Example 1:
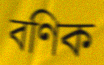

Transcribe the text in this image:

বণিক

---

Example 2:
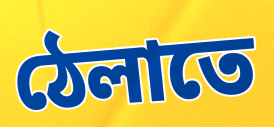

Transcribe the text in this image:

ঠেলাতে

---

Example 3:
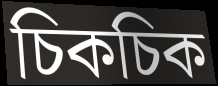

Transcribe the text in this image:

চিকচিক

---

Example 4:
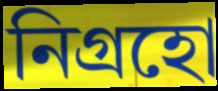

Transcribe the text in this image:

নিগ্রহো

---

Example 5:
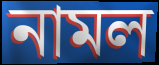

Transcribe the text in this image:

নামল